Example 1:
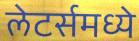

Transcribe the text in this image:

लेटर्समध्ये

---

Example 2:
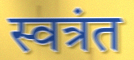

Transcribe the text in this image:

स्वत्रंत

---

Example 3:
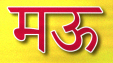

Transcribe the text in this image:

मऊ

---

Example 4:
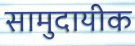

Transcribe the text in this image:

सामुदायीक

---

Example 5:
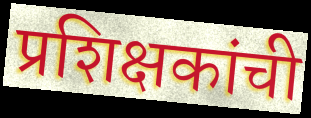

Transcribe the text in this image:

प्रशिक्षकांची